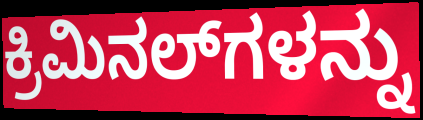
ಕ್ರಿಮಿನಲ್‍ಗಳನ್ನು